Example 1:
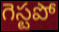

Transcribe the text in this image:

గెస్టపో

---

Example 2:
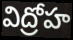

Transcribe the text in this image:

విద్రోహ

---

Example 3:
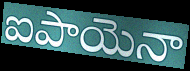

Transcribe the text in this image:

ఐపాయెనా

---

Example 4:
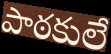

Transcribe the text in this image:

పాఠకులే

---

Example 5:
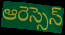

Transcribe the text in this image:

ఆరెస్సెస్